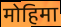
मोहिमा